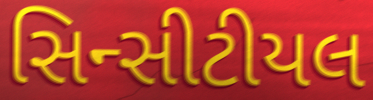
સિન્સીટીયલ